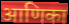
आणिका